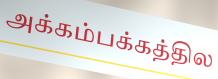
அக்கம்பக்கத்தில